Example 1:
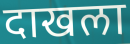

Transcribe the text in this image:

दाखला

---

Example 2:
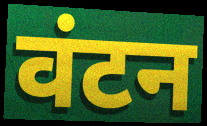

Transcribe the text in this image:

वंटन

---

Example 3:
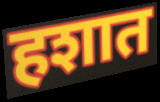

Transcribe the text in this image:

हशात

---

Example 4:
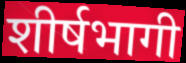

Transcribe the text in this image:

शीर्षभागी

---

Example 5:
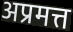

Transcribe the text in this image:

अप्रमत्त